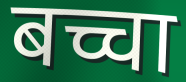
बच्चा